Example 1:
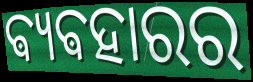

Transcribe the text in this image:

ଵ୍ୟଵହାରର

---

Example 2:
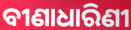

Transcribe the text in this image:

ବୀଣାଧାରିଣୀ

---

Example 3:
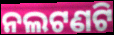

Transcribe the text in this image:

ନଲଟଣଟି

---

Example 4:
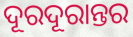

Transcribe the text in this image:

ଦୂରଦୂରାନ୍ତର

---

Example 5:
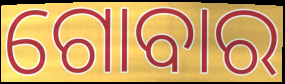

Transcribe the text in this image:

ଗୋବାର